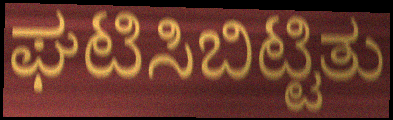
ಘಟಿಸಿಬಿಟ್ಟಿತು